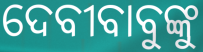
ଦେବୀବାବୁଙ୍କୁ